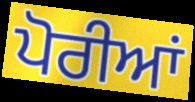
ਪੋਰੀਆਂ